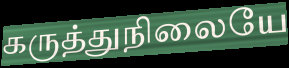
கருத்துநிலையே